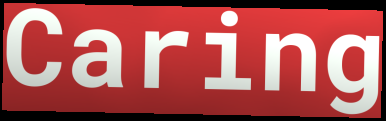
Caring